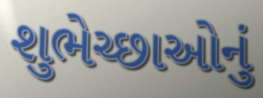
શુભેચ્છાઓનું